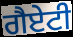
ਗੈਏਟੀ